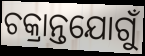
ଚକ୍ରାନ୍ତଯୋଗୁଁ